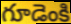
గూడెంకి